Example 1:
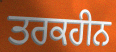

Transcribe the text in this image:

ਤਰਕਹੀਨ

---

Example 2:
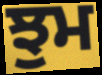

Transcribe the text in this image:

ਝੁਮ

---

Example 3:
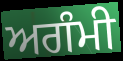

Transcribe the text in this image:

ਅਗੰਮੀ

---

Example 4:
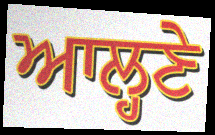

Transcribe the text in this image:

ਆਲ੍ਹਣੇ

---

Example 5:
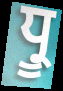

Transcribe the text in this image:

ਧ੍ਰੂ